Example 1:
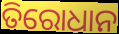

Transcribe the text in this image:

ତିରୋଧାନ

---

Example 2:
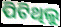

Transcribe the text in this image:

ପିଟିଥିଲୁ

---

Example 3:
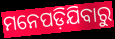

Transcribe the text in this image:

ମନେପଡ଼ିଯିବାରୁ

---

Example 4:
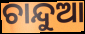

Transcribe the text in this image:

ଚାନ୍ଦୁଆ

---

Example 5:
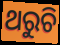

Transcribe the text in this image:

ଥରୁଚି